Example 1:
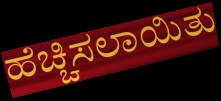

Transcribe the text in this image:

ಹೆಚ್ಚಿಸಲಾಯಿತು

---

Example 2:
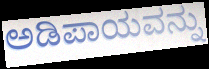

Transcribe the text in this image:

ಅಡಿಪಾಯವನ್ನು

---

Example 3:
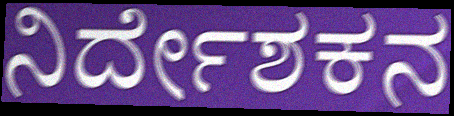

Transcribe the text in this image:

ನಿರ್ದೇಶಕನ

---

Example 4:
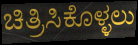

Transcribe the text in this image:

ಚಿತ್ರಿಸಿಕೊಳ್ಳಲು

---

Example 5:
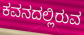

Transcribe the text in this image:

ಕವನದಲ್ಲಿರುವ